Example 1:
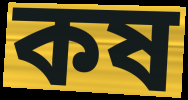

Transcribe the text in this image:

কষ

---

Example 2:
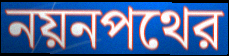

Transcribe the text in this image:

নয়নপথের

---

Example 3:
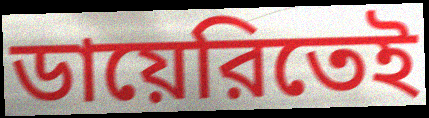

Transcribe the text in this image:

ডায়েরিতেই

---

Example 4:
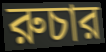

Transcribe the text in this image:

রুচার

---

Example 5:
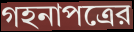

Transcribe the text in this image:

গহনাপত্রের